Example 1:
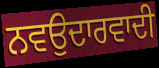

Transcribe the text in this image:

ਨਵਉਦਾਰਵਾਦੀ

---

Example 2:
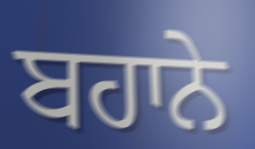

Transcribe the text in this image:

ਬਹਾਨੇ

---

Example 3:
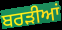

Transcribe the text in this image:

ਬਰੜੀਆਂ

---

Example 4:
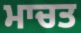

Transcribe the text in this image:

ਮਾਚਤ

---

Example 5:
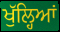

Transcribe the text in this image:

ਖੁੱਲ੍ਹਿਆਂ